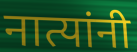
नात्यांनी